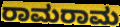
ರಾಮರಾಮ